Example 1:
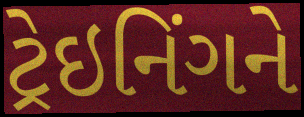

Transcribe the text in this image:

ટ્રેઇનિંગને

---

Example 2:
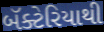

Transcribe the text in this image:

બૅક્ટેરિયાથી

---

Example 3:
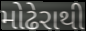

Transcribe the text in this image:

મોઢેરાથી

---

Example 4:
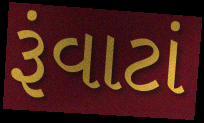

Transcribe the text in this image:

રૂંવાટાં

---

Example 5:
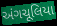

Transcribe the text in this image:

અંગચૂલિયા